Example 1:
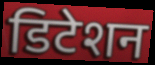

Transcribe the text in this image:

डिटेशन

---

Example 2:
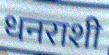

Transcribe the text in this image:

धनराशी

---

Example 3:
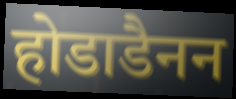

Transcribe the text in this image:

होडाडैनन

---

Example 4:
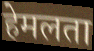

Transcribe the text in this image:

हेमलता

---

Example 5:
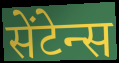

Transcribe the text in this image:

सेंटेन्स